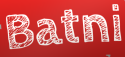
Batni